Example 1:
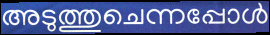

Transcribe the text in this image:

അടുത്തുചെന്നപ്പോൾ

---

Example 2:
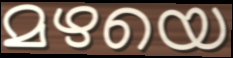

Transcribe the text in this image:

മഴയെ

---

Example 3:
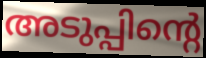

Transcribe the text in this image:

അടുപ്പിന്റെ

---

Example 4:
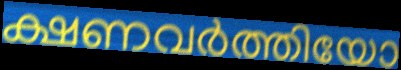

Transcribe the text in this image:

ക്ഷണവർത്തിയോ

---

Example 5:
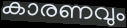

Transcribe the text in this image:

കാരണവും